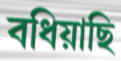
বধিয়াছি